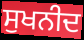
ਸੁਖਨੀਦ